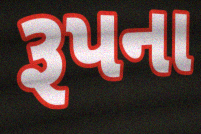
રૂપના